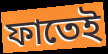
ফাতেই